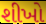
શીખો